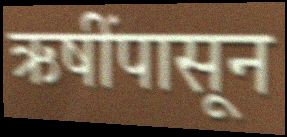
ऋषींपासून